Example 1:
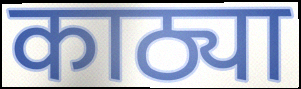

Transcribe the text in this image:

काठ्या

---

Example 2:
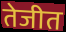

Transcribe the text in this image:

तेजीत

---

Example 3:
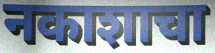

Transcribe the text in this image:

नकाशाचा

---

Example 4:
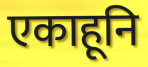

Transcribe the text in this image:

एकाहूनि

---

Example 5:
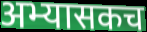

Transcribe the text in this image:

अभ्यासकच